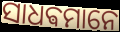
ସାଧଵମାନେ